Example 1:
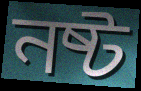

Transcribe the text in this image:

নষ্ট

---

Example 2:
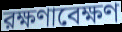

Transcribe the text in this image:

রক্ষণাবেক্ষণ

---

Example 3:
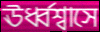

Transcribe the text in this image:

ঊর্ধ্বশ্বাসে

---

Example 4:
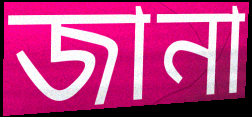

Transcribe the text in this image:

জানা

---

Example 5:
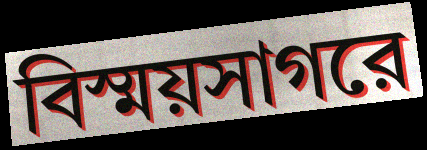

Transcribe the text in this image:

বিস্ময়সাগরে